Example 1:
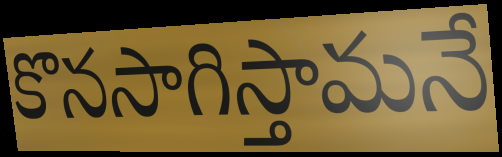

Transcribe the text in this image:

కొనసాగిస్తామనే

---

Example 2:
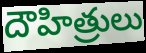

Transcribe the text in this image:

దౌహిత్రులు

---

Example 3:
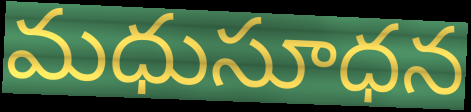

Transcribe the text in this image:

మధుసూధన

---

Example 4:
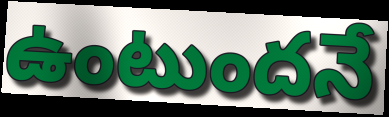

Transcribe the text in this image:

ఉంటుందనే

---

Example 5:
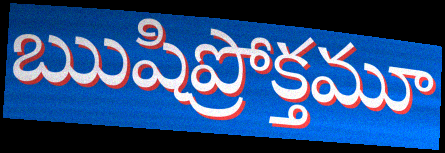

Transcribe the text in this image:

ఋషిప్రోక్తమూ